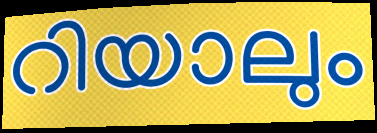
റിയാലും